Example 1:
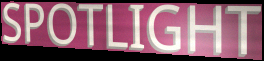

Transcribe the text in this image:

SPOTLIGHT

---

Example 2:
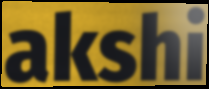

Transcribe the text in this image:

akshi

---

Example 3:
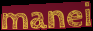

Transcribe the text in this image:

manei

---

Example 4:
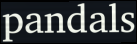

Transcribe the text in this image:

pandals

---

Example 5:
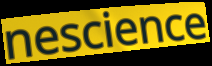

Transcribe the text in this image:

nescience